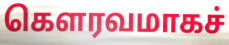
கௌரவமாகச்